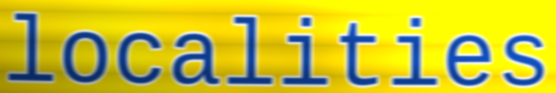
localities